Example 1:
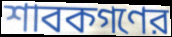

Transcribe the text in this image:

শাবকগণের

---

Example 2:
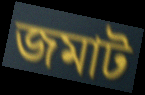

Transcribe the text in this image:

জমাট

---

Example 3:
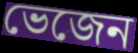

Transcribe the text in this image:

ভেজেন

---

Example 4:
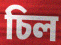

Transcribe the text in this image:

চিল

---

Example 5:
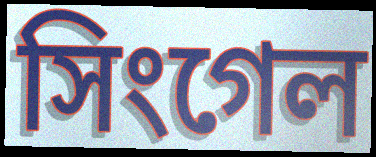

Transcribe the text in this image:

সিংগেল